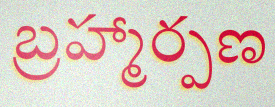
బ్రహ్మార్పణ